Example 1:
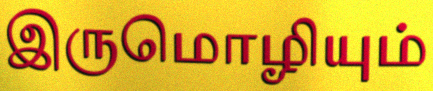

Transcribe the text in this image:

இருமொழியும்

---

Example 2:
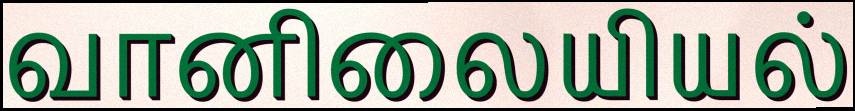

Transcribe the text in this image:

வானிலையியல்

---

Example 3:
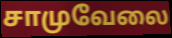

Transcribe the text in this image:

சாமுவேலை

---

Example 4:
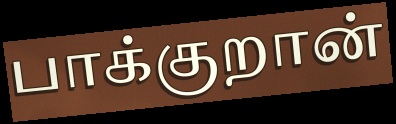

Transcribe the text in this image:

பாக்குறான்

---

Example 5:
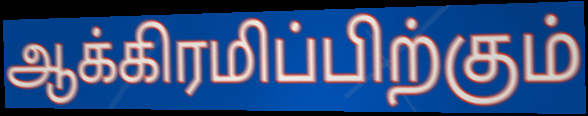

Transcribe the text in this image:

ஆக்கிரமிப்பிற்கும்